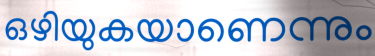
ഒഴിയുകയാണെന്നും